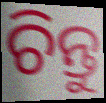
ଚିନ୍ତୁ